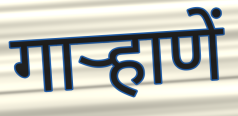
गार्‍हाणें